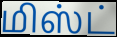
மிஸ்ட்